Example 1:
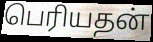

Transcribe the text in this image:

பெரியதன்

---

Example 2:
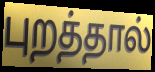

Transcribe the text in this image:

புறத்தால்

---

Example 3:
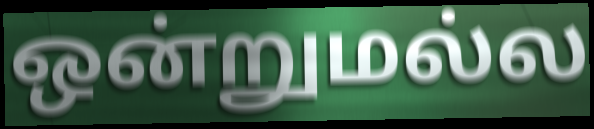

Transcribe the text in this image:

ஒன்றுமல்ல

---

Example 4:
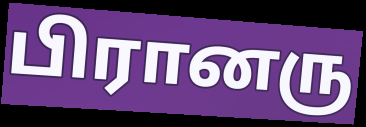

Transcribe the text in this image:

பிரானரு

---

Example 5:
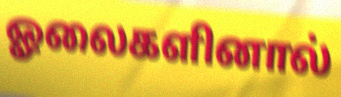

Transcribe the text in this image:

ஓலைகளினால்